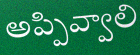
అప్పివ్వాలి